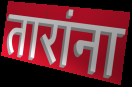
तारांना